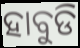
ହାବୁଡି